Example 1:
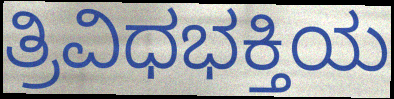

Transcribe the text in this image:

ತ್ರಿವಿಧಭಕ್ತಿಯ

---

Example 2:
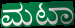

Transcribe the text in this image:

ಮಟಾ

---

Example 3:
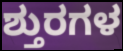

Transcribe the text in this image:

ಶ್ತುರಗಳ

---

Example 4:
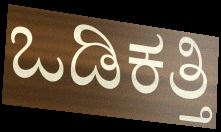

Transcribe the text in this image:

ಒಡಿಕತ್ತಿ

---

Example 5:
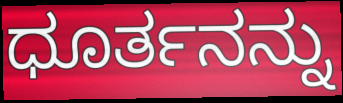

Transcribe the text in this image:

ಧೂರ್ತನನ್ನು